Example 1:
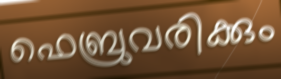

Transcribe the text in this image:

ഫെബ്രുവരിക്കും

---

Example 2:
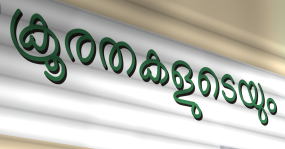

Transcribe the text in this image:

ക്രൂരതകളുടെയും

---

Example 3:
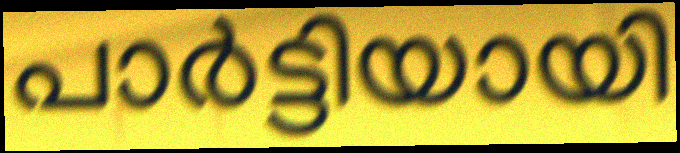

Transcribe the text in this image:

പാർട്ടിയായി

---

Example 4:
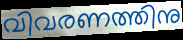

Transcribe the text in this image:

വിവരണത്തിനു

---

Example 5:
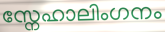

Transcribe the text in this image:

സ്നേഹാലിംഗനം